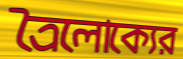
ত্রৈলোক্যের